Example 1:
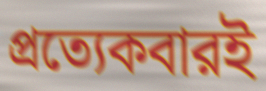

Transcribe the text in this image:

প্রত্যেকবারই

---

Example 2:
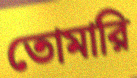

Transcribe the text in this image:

তোমারি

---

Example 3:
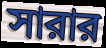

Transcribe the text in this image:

সারার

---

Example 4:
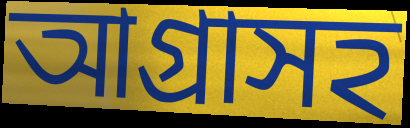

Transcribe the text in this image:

আগ্রাসহ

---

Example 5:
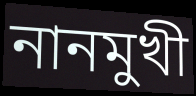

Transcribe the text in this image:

নানমুখী